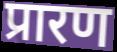
प्रारण